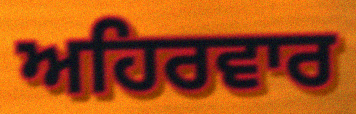
ਅਹਿਰਵਾਰ